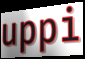
uppi